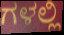
ಗಳಲ್ಲಿ